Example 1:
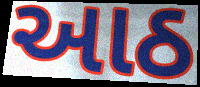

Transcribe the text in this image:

આઠ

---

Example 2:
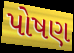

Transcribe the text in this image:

પોષણ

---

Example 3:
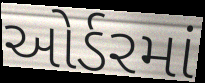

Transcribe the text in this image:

ઓર્ડરમાં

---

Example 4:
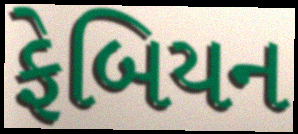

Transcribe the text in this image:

ફેબિયન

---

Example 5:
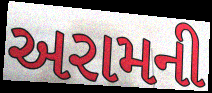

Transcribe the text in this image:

અરામની